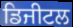
ਡਿਜੀਟਲ